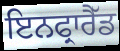
ਇਨਫ੍ਰਾਰੈੱਡ